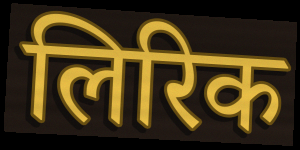
लिरिक